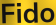
Fido